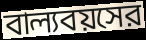
বাল্যবয়সের